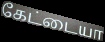
கேட்டையா